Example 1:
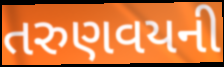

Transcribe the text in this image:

તરુણવયની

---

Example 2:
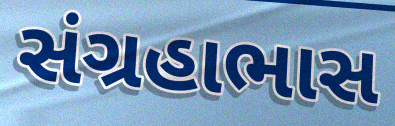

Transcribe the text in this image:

સંગ્રહાભાસ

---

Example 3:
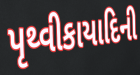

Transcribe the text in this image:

પૃથ્વીકાયાદિની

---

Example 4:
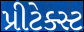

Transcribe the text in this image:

પ્રીટેક્સ્ટ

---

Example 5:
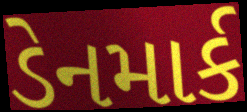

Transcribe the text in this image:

ડેનમાર્ક